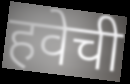
हवेची